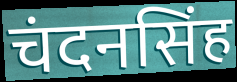
चंदनसिंह